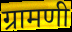
ग्रामणी